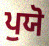
ਪੁਯੋ